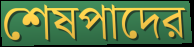
শেষপাদের